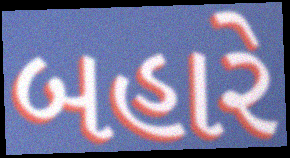
બહારે